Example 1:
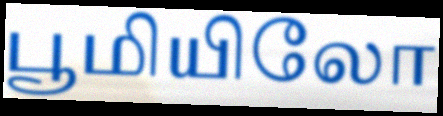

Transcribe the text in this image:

பூமியிலோ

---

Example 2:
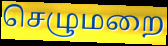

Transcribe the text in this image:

செழுமறை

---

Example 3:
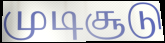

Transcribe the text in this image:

முடிசூடு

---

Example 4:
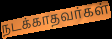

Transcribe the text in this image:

நடக்காதவர்கள்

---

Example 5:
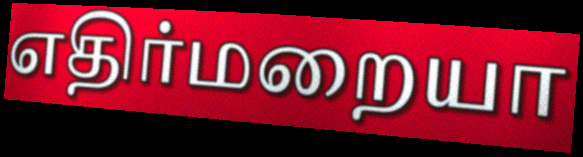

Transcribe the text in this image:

எதிர்மறையா